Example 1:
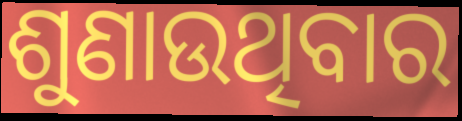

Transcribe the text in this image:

ଶୁଣାଉଥିବାର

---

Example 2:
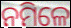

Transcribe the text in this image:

ନମିଳେ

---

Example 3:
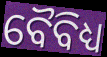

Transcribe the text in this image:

ବୈବିଧ୍ୟ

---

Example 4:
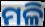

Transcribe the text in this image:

ମଳି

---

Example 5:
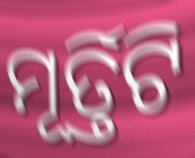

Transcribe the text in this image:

ମୂର୍ତ୍ତିଟି